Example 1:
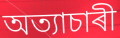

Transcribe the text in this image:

অত্যাচাৰী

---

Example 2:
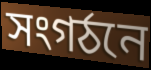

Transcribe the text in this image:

সংগঠনে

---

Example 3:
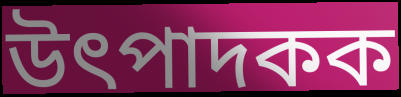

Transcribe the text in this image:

উৎপাদকক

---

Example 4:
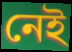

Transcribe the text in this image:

নেই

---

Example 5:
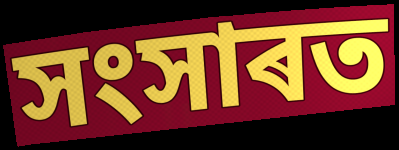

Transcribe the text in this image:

সংসাৰত